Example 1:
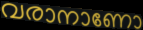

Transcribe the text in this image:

വരാനാണോ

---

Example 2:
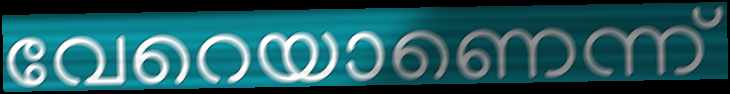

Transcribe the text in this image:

വേറെയാണെന്ന്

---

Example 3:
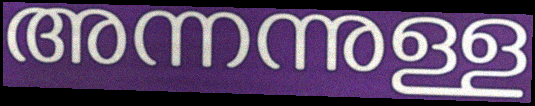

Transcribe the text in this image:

അന്നന്നുള്ള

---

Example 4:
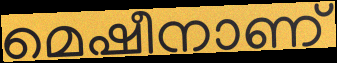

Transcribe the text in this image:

മെഷീനാണ്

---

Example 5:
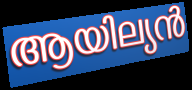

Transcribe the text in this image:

ആയില്യൻ